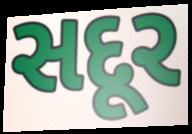
સદૂર